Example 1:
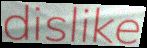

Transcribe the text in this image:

dislike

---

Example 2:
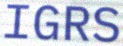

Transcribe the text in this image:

IGRS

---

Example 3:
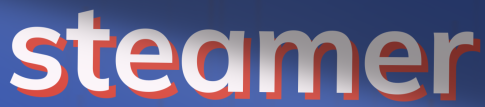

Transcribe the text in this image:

steamer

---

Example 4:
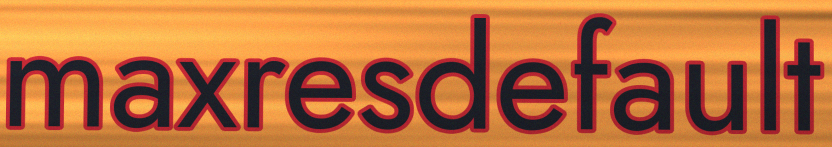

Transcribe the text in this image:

maxresdefault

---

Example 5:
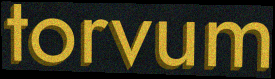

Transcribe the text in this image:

torvum